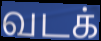
வடக்